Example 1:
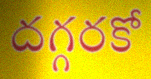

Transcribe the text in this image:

దగ్గరకో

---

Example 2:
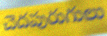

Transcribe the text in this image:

చెదపురుగులు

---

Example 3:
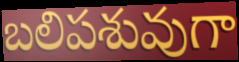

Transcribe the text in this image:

బలిపశువుగా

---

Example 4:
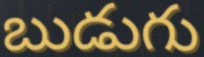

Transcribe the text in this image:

బుడుగు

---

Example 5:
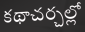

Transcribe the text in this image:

కథాచర్చల్లో